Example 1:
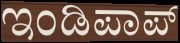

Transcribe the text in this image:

ಇಂಡಿಪಾಪ್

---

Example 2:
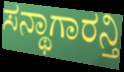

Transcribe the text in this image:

ಸನ್ಥಾಗಾರನ್ತಿ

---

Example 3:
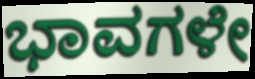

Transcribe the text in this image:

ಭಾವಗಳೇ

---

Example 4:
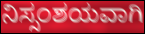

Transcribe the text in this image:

ನಿಸ್ಸಂಶಯವಾಗಿ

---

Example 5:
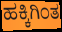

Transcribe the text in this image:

ಹಕ್ಕಿಗಿಂತ